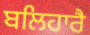
ਬਲਿਹਾਰੈ